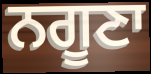
ਨਗੂਣਾ